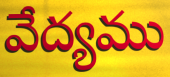
వేద్యము